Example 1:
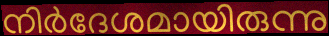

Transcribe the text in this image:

നിർദേശമായിരുന്നു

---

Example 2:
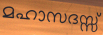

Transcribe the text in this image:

മഹാസദസ്സ്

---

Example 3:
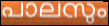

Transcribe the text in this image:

പാലസും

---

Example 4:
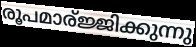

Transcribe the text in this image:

രൂപമാര്ജ്ജിക്കുന്നു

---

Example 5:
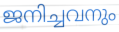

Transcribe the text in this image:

ജനിച്ചവനും